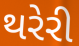
થરેરી